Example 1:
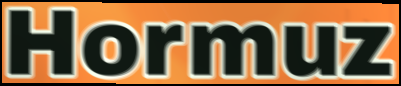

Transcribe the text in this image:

Hormuz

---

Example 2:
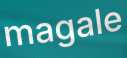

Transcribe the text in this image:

magale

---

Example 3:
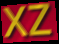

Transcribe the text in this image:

XZ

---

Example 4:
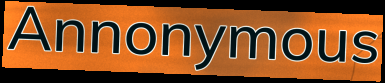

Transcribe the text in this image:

Annonymous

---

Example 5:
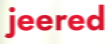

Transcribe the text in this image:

jeered